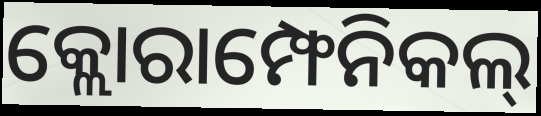
କ୍ଲୋରାମ୍ଫେନିକଲ୍